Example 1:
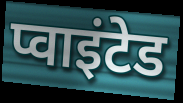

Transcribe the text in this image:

प्वाइंटेड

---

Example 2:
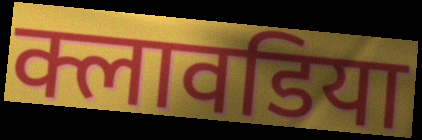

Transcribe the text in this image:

क्लावडिया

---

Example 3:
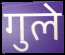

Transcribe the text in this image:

गुले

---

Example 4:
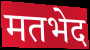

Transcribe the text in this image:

मतभेद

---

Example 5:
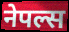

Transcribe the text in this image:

नेपल्स